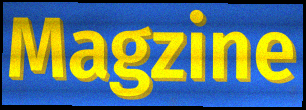
Magzine